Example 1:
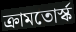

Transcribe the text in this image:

ক্রামতোর্স্ক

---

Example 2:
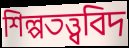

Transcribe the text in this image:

শিল্পতত্ত্ববিদ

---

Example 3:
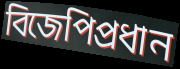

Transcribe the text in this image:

বিজেপিপ্রধান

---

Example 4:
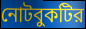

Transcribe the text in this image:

নোটবুকটির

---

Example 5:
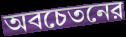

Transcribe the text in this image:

অবচেতনের